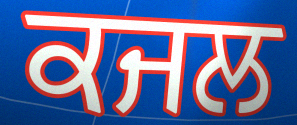
ਕਜਲ